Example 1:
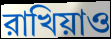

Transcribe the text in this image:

রাখিয়াও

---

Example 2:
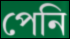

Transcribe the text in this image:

পেনি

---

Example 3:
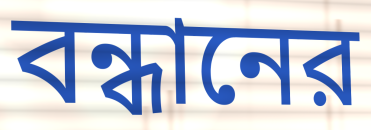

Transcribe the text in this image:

বন্ধানের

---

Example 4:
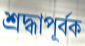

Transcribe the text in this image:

শ্রদ্ধাপূর্বক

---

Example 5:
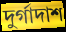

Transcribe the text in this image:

দুর্গাদাশ